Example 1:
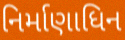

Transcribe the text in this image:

નિર્માણાધિન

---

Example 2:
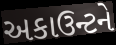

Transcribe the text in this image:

અકાઉન્ટને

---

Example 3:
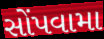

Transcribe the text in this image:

સોંપવામા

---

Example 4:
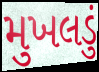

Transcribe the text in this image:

મુખલડું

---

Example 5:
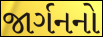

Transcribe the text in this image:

જાર્ગનનો